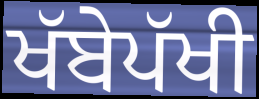
ਖੱਬੇਪੱਖੀ